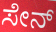
ಸೇನ್